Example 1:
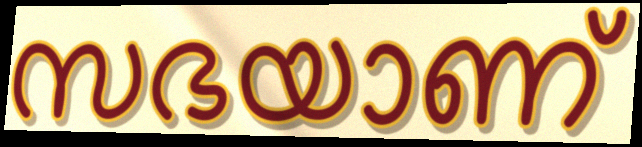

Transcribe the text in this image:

സഭയാണ്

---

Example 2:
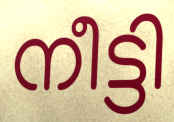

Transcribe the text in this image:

നീട്ടി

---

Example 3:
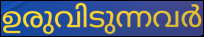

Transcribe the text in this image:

ഉരുവിടുന്നവർ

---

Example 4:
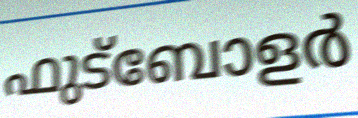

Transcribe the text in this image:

ഫുട്ബോളർ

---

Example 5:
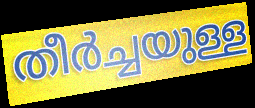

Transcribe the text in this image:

തീർച്ചയുള്ള